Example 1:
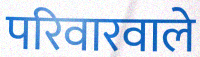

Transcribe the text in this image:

परिवारवाले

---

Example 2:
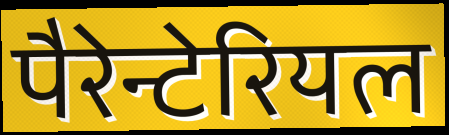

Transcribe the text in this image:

पैरेन्टेरियल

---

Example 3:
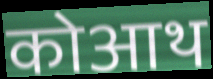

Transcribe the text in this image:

कोआथ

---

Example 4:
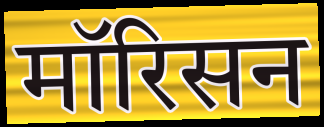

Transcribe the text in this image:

मॉरिसन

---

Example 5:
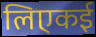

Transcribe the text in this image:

लिएकई